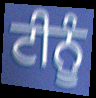
ਟੀਨੂੰ